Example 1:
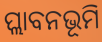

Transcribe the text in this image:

ପ୍ଲାବନଭୂମି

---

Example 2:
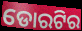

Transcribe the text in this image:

ଡୋରଟିର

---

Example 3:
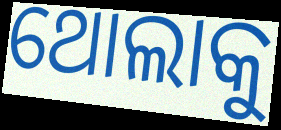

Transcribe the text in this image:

ଥୋଲାକୁ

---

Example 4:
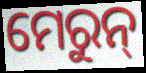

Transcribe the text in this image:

ମେରୁନ୍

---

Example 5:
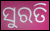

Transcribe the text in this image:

ସୁରତି